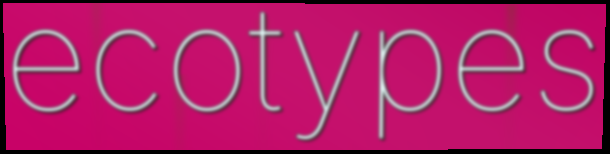
ecotypes